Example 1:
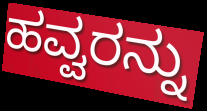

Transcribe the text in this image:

ಹವ್ವರನ್ನು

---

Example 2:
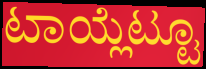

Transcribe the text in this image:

ಟಾಯ್ಲೆಟ್ಟೂ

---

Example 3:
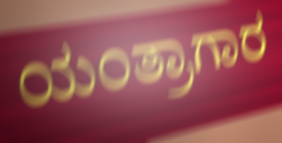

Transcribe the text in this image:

ಯಂತ್ರಾಗಾರ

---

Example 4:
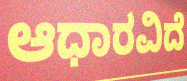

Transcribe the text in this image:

ಆಧಾರವಿದೆ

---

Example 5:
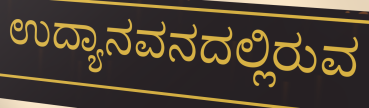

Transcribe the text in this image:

ಉದ್ಯಾನವನದಲ್ಲಿರುವ